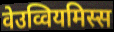
वेउव्वियमिस्स